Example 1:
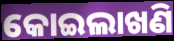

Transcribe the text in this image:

କୋଇଲାଖଣି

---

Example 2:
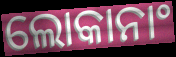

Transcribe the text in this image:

ଲୋକାନାଂ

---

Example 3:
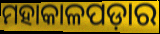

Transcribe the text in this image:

ମହାକାଳପଡ଼ାର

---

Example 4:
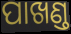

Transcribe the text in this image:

ପାଖଣ୍ଡ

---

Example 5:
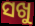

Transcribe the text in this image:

ସଖୁ